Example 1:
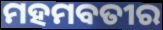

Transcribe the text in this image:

ମହମବତୀର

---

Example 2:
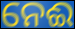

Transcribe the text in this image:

ନେଈ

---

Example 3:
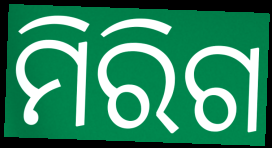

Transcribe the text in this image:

ମିରିଗ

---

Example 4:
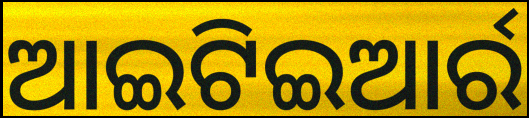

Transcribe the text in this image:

ଆଇଟିଇଆର୍ର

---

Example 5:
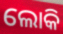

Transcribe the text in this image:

ଲୋକି